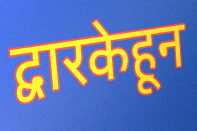
द्वारकेहून